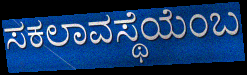
ಸಕಲಾವಸ್ಥೆಯೆಂಬ